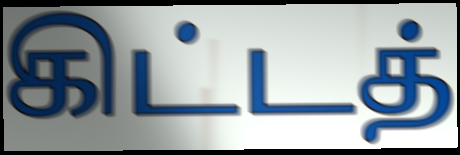
கிட்டத்